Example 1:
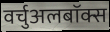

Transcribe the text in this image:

वर्चुअलबॉक्स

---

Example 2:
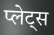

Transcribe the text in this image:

प्‍लेट्स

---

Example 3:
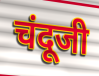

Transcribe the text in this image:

चंदूजी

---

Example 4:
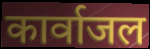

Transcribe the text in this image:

कार्वाजल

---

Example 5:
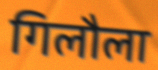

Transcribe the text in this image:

गिलौला